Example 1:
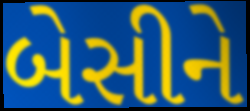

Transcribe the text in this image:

બેસીને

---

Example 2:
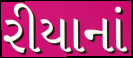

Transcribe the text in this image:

રીયાનાં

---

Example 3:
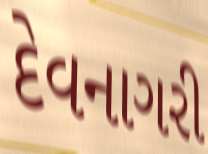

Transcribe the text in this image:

દેવનાગરી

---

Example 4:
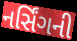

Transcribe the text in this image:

નર્સિંગની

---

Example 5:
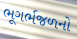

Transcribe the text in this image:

ભૂગર્ભજળનો